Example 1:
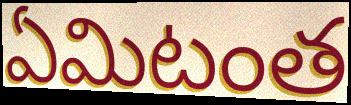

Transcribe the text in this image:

ఏమిటంత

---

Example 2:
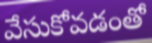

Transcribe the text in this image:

వేసుకోవడంతో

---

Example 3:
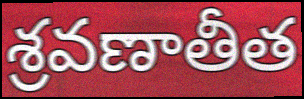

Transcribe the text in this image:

శ్రవణాతీత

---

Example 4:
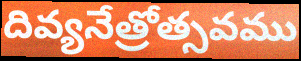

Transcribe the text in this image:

దివ్యనేత్రోత్సవము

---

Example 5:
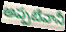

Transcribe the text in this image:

అప్పటివానీ